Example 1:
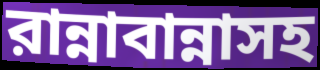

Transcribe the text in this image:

রান্নাবান্নাসহ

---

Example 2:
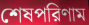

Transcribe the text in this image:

শেষপরিণাম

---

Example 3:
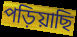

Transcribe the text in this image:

পড়িয়াছি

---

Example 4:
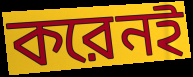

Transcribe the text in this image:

করেনই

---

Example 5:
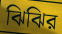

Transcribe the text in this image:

ঝিঝির